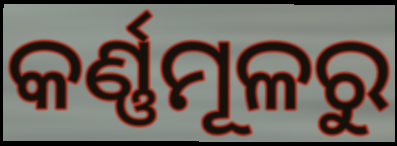
କର୍ଣ୍ଣମୂଳରୁ